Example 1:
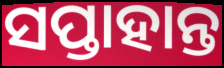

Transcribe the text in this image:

ସପ୍ତାହାନ୍ତ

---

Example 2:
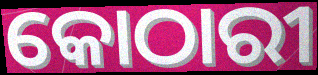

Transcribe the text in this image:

କୋଠାରୀ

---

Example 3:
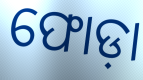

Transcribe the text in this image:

ଫୋଡ଼ା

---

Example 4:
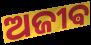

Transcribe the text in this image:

ଅଜୀଵ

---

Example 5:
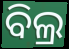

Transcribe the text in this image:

ବିଲ୍ର